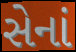
સેનાં